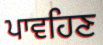
ਪਾਵਹਿਣ